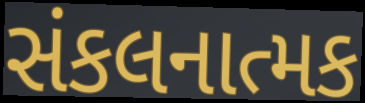
સંકલનાત્મક